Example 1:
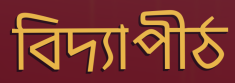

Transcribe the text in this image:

বিদ্যাপীঠ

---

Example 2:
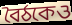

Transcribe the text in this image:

বৈঠকেও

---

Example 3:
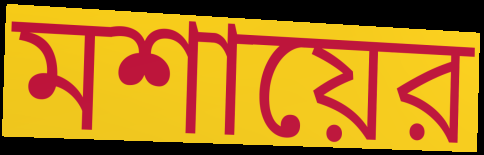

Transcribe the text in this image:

মশায়ের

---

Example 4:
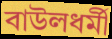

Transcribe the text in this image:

বাউলধর্মী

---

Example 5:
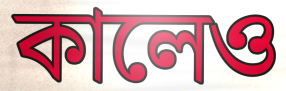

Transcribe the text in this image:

কালেও